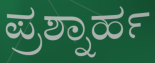
ಪ್ರಶ್ನಾರ್ಹ